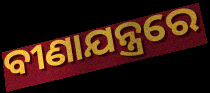
ବୀଣାଯନ୍ତ୍ରରେ